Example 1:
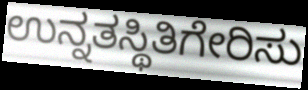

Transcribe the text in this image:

ಉನ್ನತಸ್ಥಿತಿಗೇರಿಸು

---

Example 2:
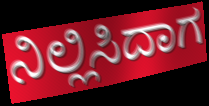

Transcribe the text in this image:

ನಿಲ್ಲಿಸಿದಾಗ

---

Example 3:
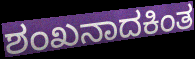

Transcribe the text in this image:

ಶಂಖನಾದಕಿಂತ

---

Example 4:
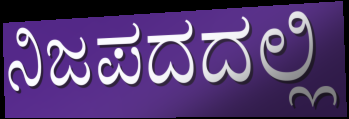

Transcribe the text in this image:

ನಿಜಪದದಲ್ಲಿ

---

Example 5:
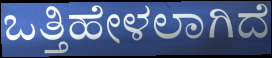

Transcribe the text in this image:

ಒತ್ತಿಹೇಳಲಾಗಿದೆ